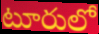
టూరులో